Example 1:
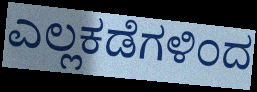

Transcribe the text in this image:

ಎಲ್ಲಕಡೆಗಳಿಂದ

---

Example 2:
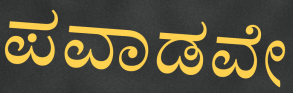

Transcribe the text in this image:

ಪವಾಡವೇ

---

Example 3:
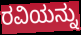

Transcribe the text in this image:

ರವಿಯನ್ನು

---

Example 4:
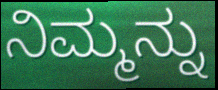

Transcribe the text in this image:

ನಿಮ್ಮನ್ನು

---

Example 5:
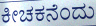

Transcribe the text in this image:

ಕೀಚಕನೆಂದು